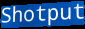
Shotput